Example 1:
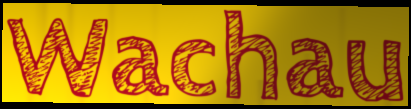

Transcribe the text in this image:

Wachau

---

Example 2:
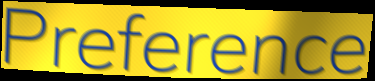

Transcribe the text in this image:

Preference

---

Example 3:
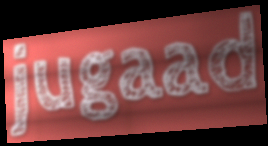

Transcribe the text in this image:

jugaad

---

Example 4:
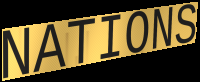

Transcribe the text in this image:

NATIONS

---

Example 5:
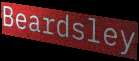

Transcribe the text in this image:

Beardsley